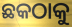
ଛକଠାକୁ